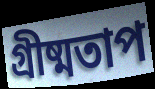
গ্রীষ্মতাপ